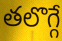
తలొగ్గే